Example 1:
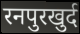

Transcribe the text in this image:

रनपुरखुर्द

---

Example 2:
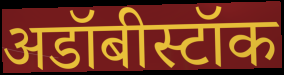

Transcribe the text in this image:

अडॉबीस्टॉक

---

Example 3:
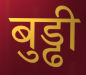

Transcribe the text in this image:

बुड्ढी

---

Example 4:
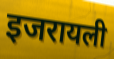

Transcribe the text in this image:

इजरायली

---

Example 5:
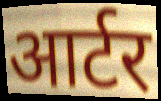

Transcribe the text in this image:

आर्टर